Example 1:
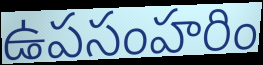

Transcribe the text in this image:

ఉపసంహరిం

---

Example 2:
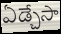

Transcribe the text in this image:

ఏడ్చేసా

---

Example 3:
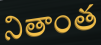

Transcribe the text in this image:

నితాంత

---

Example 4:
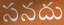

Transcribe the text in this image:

సనదు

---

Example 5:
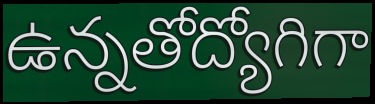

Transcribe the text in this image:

ఉన్నతోద్యోగిగా